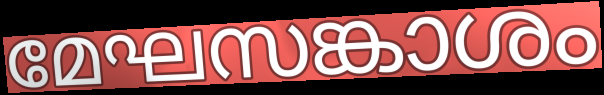
മേഘസങ്കാശം